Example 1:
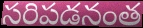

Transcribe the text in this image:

సరిపడనంత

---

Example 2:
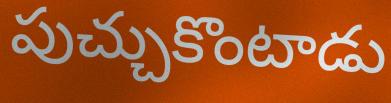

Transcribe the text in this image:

పుచ్చుకొంటాడు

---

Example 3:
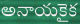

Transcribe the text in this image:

అనాయకైక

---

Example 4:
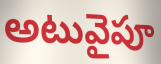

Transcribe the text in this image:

అటువైపూ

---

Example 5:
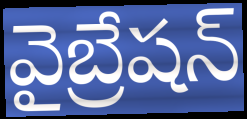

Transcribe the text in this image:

వైబ్రేషన్